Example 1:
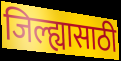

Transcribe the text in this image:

जिल्ह्यासाठी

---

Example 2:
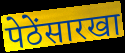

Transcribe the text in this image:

पेठेंसारखा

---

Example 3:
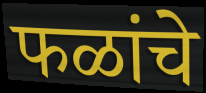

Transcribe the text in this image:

फळांचे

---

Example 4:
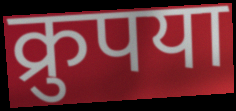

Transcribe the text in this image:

क्रुपया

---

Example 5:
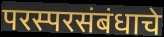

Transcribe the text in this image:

परस्परसंबंधाचे